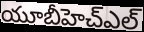
యూబీహెచ్ఎల్